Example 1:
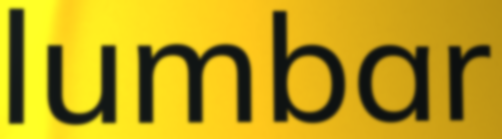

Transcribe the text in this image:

lumbar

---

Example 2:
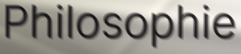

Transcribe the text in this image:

Philosophie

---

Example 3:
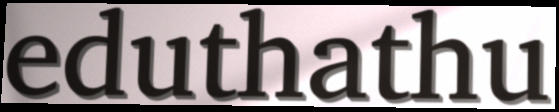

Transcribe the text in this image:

eduthathu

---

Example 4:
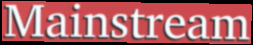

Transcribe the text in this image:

Mainstream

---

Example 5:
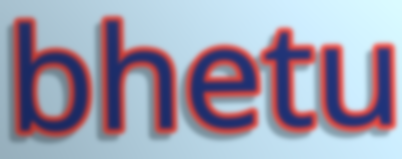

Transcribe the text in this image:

bhetu